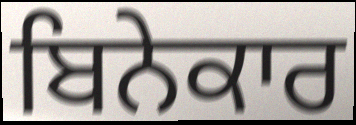
ਬਿਨੇਕਾਰ